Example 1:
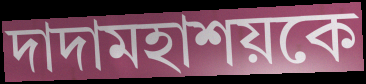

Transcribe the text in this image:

দাদামহাশয়কে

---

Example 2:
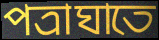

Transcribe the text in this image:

পত্রাঘাতে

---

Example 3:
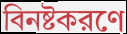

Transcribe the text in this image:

বিনষ্টকরণে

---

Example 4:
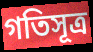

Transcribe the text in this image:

গতিসূত্র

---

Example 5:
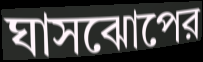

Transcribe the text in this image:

ঘাসঝোপের